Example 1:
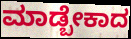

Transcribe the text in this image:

ಮಾಡ್ಬೇಕಾದ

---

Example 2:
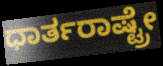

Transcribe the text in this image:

ಧಾರ್ತರಾಷ್ಟ್ರೇ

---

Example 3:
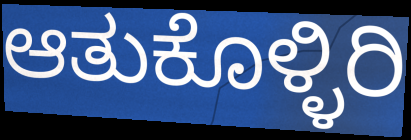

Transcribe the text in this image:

ಆತುಕೊಳ್ಳಿರಿ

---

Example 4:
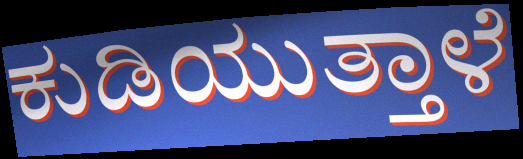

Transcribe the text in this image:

ಕುಡಿಯುತ್ತಾಳೆ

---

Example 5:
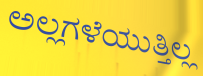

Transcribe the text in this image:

ಅಲ್ಲಗಳೆಯುತ್ತಿಲ್ಲ